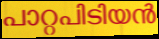
പാറ്റപിടിയൻ